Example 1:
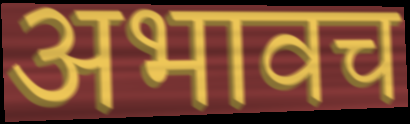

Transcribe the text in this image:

अभावच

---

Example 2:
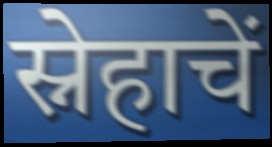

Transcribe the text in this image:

स्नेहाचें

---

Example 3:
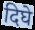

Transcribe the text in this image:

दिघे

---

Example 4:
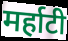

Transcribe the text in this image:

मर्हाटी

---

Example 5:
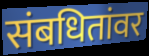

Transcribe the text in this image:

संबधितांवर